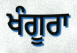
ਖੰਗੂਰਾ